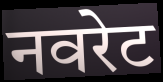
नवरेट